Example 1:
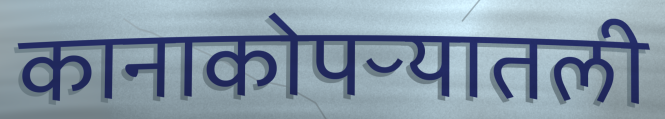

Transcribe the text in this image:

कानाकोपऱ्यातली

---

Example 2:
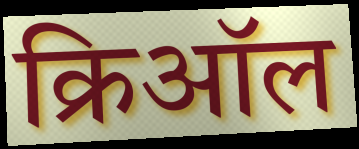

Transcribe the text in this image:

क्रिऑल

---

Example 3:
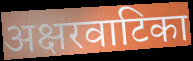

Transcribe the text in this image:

अक्षरवाटिका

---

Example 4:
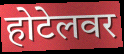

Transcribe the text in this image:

होटेलवर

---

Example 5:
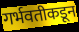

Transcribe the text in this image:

गर्भवतीकडून